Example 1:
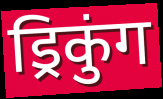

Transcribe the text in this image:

ड्रिकुंग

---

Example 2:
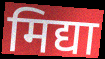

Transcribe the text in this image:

मिद्या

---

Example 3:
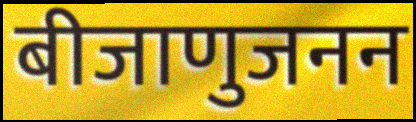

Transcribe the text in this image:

बीजाणुजनन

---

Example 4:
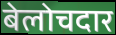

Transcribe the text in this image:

बेलोचदार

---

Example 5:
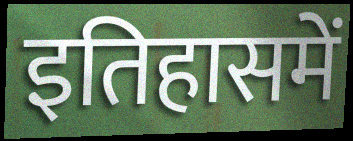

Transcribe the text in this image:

इतिहासमें